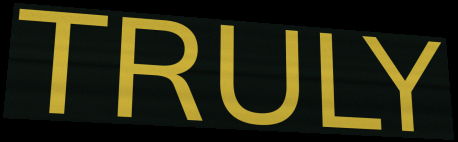
TRULY